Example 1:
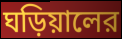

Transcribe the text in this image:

ঘড়িয়ালের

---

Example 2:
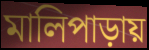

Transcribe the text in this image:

মালিপাড়ায়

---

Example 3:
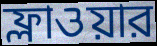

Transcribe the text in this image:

ফ্লাওয়ার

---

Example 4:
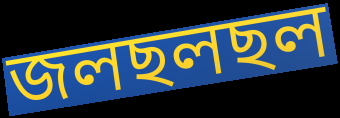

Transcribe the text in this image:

জলছলছল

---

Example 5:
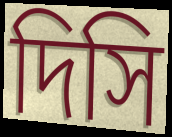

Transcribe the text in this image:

দিসি